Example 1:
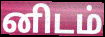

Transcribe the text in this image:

னிடம்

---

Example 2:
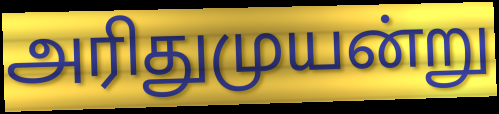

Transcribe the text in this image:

அரிதுமுயன்று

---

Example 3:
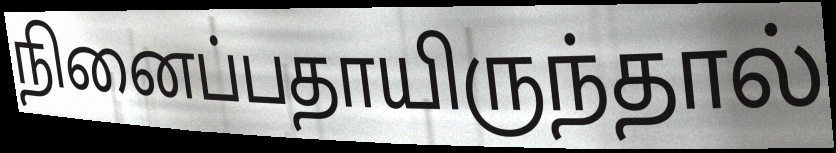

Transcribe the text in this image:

நினைப்பதாயிருந்தால்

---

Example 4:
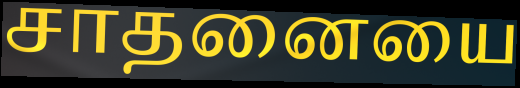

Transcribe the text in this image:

சாதனையை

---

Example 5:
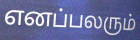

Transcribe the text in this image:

எனப்பலரும்